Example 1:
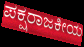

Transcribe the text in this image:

ಪಕ್ಷರಾಜಕೀಯ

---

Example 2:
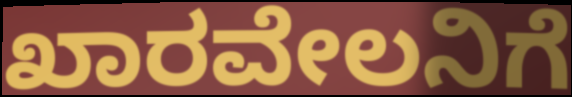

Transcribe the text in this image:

ಖಾರವೇಲನಿಗೆ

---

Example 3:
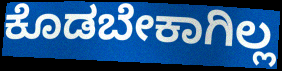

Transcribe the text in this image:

ಕೊಡಬೇಕಾಗಿಲ್ಲ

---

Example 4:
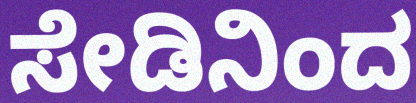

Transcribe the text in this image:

ಸೇಡಿನಿಂದ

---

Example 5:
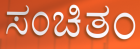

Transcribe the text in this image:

ಸಂಚಿತಂ